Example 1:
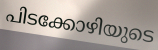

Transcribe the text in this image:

പിടക്കോഴിയുടെ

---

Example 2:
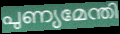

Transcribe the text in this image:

പുണ്യമേന്തി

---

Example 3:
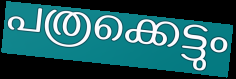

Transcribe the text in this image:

പത്രക്കെട്ടും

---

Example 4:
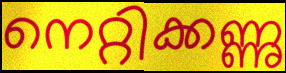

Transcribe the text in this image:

നെറ്റിക്കണ്ണു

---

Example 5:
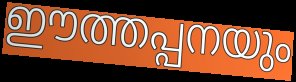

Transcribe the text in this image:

ഈത്തപ്പനയും